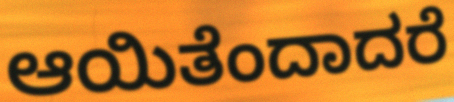
ಆಯಿತೆಂದಾದರೆ